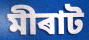
মীৰাট